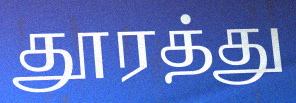
தூரத்து